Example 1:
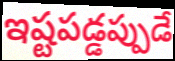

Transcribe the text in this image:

ఇష్టపడ్డప్పుడే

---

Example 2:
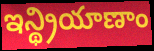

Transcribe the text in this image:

ఇన్థ్రియాణాం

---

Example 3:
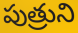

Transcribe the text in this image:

పుత్రుని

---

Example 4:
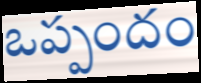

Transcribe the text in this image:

ఒప్పందం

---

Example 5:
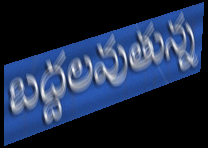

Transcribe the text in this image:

బద్దలవుతున్న